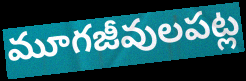
మూగజీవులపట్ల